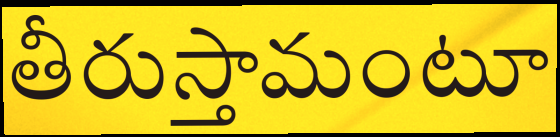
తీరుస్తామంటూ